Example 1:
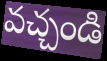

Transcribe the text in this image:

వచ్చండి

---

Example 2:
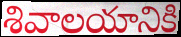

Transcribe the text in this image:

శివాలయానికి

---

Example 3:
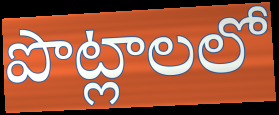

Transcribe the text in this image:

పొట్లాలలో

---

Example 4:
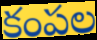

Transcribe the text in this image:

కంపల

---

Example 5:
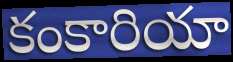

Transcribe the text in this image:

కంకారియా